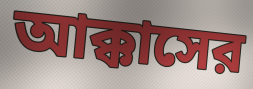
আক্কাসের